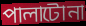
পালাটোনা